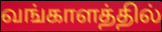
வங்காளத்தில்